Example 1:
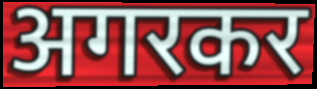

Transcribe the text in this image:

अगरकर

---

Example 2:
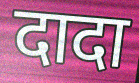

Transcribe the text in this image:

दादा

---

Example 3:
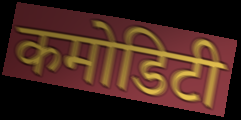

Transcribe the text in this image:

कमोडिटी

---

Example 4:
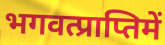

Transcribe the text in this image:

भगवत्प्राप्तिमें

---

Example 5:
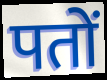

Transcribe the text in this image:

पतों